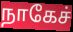
நாகேச்